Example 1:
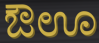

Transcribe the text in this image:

ಔಊ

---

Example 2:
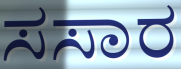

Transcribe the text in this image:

ಸಸಾರ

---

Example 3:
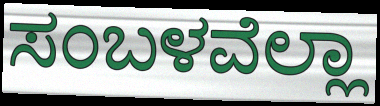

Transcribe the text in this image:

ಸಂಬಳವೆಲ್ಲಾ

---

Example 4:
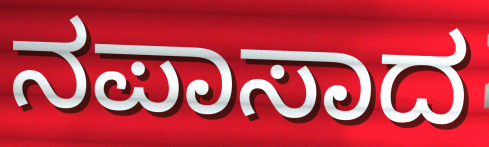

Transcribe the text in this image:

ನಪಾಸಾದ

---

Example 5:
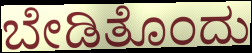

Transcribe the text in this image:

ಬೇಡಿತೊಂದು